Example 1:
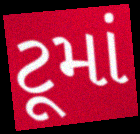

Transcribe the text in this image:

ટૂમાં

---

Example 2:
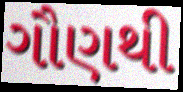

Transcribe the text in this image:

ગૌણથી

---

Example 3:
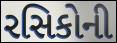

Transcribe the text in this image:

રસિકોની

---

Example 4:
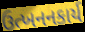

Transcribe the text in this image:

ઉત્ખનનકાર્ય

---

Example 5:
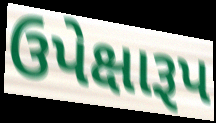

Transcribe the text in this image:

ઉપેક્ષારૂપ